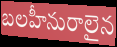
బలహీనురాలైన